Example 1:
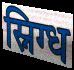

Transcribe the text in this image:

स्निग्ध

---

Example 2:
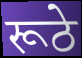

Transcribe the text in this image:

रूठे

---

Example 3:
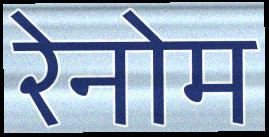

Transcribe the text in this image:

रेनोम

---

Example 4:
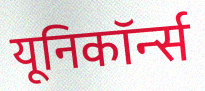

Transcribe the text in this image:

यूनिकॉर्न्स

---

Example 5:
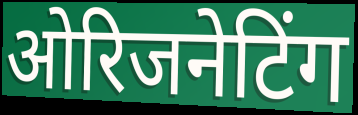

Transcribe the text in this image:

ओरिजनेटिंग